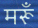
मरूँ